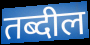
तब्दील